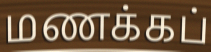
மணக்கப்